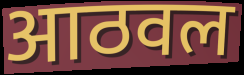
आठवल